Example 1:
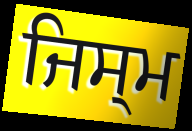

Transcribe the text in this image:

ਜਿਸ੍ਮ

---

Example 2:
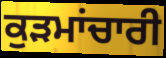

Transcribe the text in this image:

ਕੁੜਮਾਂਚਾਰੀ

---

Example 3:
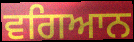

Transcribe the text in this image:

ਵਗਿਆਨ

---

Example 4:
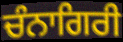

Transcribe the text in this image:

ਚੰਨਾਗਿਰੀ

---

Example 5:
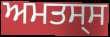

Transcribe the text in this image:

ਅਮਤਸ੍ਸ